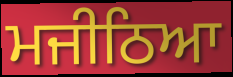
ਮਜੀਠਿਆ